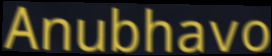
Anubhavo